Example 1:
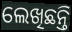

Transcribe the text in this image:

ଲେଖିଛନ୍ତି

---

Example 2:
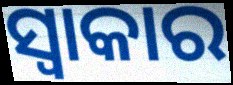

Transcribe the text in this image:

ସ୍ୱାକାର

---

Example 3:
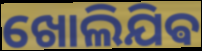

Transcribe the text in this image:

ଖୋଲିଯିଵ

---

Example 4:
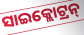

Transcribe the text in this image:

ସାଇକ୍ଲୋଟ୍ରନ୍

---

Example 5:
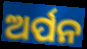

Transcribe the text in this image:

ଅର୍ପନ